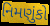
નિમણુંકો